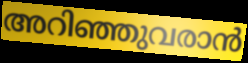
അറിഞ്ഞുവരാൻ